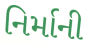
નિર્માની